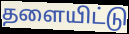
தளையிட்டு